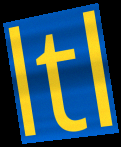
ltl